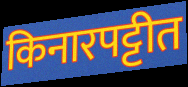
किनारपट्टीत